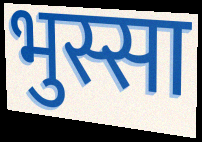
भुस्सा